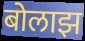
बोलाझ